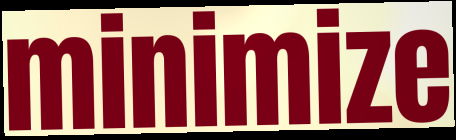
minimize